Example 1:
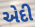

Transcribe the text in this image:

એદી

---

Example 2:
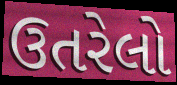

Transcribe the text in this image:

ઉતરેલો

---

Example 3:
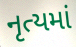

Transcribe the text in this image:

નૃત્યમાં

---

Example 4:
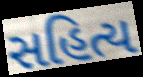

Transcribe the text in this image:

સહિત્ય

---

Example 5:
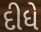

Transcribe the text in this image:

દીધે